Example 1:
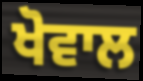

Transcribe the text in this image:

ਖੋਵਾਲ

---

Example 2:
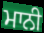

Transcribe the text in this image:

ਮਾਨੀ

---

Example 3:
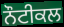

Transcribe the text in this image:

ਨੌਟੀਕਲ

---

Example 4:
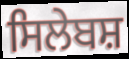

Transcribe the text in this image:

ਸਿਲੇਬਸ਼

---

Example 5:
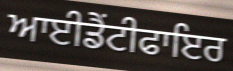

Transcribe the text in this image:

ਆਈਡੈਂਟੀਫਾਇਰ